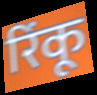
रिंकू